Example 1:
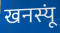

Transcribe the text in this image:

खनस्यूं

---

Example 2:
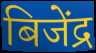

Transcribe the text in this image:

बिजेंद्र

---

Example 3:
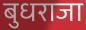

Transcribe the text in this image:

बुधराजा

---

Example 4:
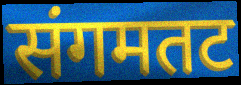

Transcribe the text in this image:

संगमतट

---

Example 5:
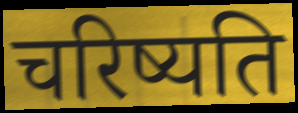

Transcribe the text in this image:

चरिष्यति